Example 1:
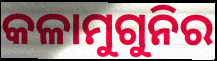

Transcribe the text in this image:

କଳାମୁଗୁନିର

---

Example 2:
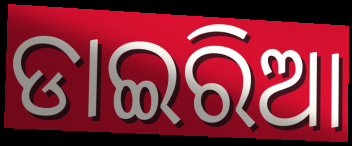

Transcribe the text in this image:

ଡାଇରିଆ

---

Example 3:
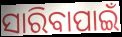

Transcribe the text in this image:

ସାରିବାପାଇଁ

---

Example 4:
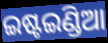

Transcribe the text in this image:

ଇଷ୍ଟଇଣ୍ଡିଆ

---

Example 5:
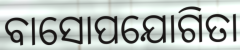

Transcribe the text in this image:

ବାସୋପଯୋଗିତା